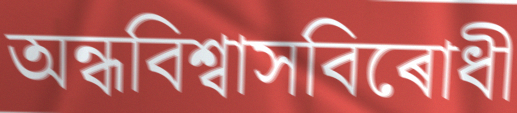
অন্ধবিশ্বাসবিৰোধী